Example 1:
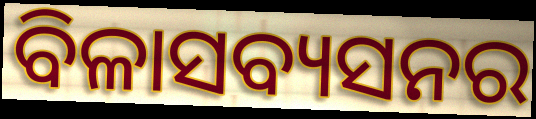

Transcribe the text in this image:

ବିଳାସବ୍ୟସନର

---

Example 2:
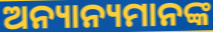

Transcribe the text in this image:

ଅନ୍ୟାନ୍ୟମାନଙ୍କ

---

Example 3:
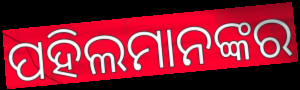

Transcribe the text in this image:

ପହିଲମାନଙ୍କର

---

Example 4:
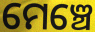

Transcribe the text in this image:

ମେଞ୍ଚେ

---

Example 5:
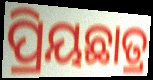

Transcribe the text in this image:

ପ୍ରିୟଛାତ୍ର